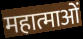
महात्माओं